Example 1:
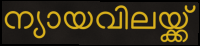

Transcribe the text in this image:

ന്യായവിലയ്ക്ക്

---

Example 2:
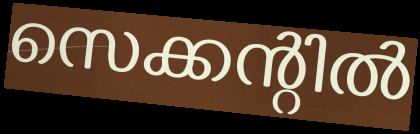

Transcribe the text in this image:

സെക്കന്റിൽ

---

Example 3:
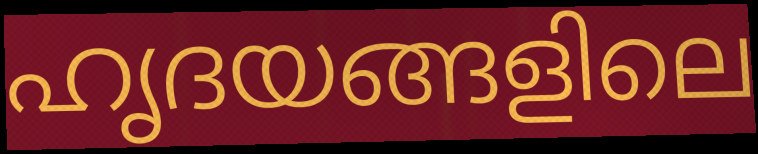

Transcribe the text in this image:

ഹൃദയങ്ങളിലെ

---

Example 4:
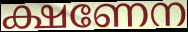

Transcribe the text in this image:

ക്ഷണേന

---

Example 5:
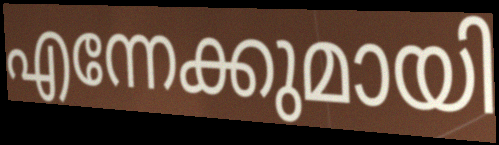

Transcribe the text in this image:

എന്നേക്കുമായി